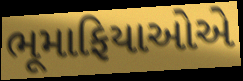
ભૂમાફિયાઓએ